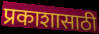
प्रकाशासाठी